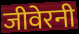
जीवेरनी